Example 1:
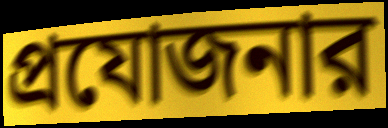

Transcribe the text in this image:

প্রযোজনার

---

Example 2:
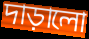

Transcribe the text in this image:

দাড়ালো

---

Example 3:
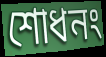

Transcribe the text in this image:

শোধনং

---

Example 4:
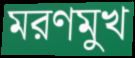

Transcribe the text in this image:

মরণমুখ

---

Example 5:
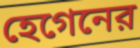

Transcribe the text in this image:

হেগেনের